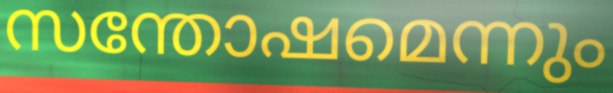
സന്തോഷമെന്നും